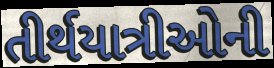
તીર્થયાત્રીઓની